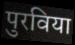
पुरविया